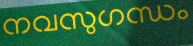
നവസുഗന്ധം